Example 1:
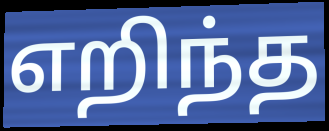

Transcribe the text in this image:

எறிந்த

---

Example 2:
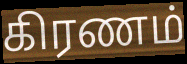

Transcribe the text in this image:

கிரணம்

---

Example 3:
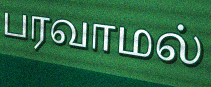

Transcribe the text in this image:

பரவாமல்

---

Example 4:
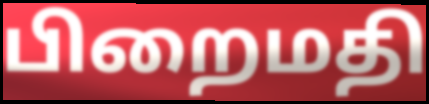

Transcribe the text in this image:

பிறைமதி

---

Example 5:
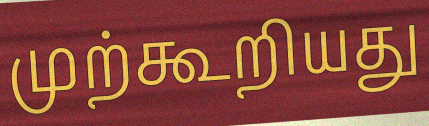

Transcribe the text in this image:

முற்கூறியது